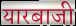
यारबाजी